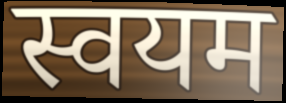
स्वयम